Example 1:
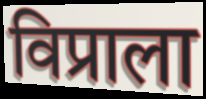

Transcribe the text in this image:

विप्राला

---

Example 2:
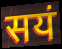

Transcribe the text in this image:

सयं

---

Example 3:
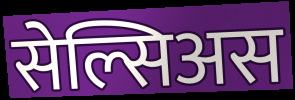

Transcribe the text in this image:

सेल्सिअस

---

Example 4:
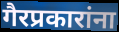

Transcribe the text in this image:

गैरप्रकारांना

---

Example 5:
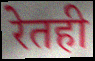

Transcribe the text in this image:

रेतही